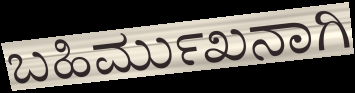
ಬಹಿರ್ಮುಖನಾಗಿ